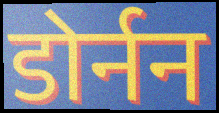
डोर्नन